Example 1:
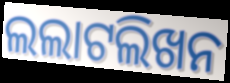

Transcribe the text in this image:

ଲଲାଟଲିଖନ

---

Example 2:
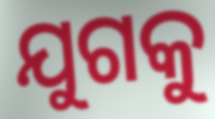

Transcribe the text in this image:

ଯୁଗକୁ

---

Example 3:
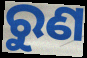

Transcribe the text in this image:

ରୁଣ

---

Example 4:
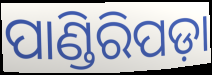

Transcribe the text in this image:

ପାଣ୍ଡିରିପଡ଼ା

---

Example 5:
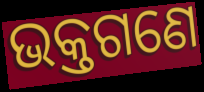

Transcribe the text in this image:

ଭକ୍ତଗଣେ